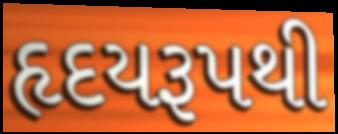
હૃદયરૂપથી